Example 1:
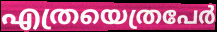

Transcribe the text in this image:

എത്രയെത്രപേർ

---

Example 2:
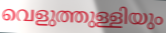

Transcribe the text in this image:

വെളുത്തുള്ളിയും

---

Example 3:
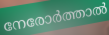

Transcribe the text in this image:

നേരോർത്താൽ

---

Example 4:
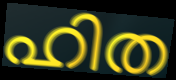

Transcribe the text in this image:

ഹിത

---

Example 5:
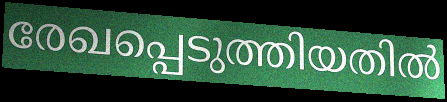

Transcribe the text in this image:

രേഖപ്പെടുത്തിയതിൽ